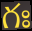
గః